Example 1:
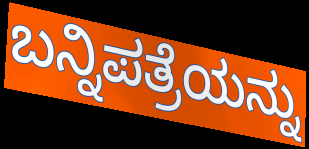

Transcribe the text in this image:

ಬನ್ನಿಪತ್ರೆಯನ್ನು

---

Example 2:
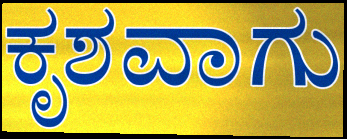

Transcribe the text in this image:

ಕೃಶವಾಗು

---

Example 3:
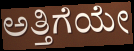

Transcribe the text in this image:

ಅತ್ತಿಗೆಯೇ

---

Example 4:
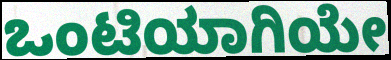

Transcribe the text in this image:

ಒಂಟಿಯಾಗಿಯೇ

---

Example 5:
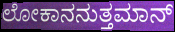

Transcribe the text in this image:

ಲೋಕಾನನುತ್ತಮಾನ್